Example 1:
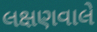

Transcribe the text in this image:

લક્ષણવાલે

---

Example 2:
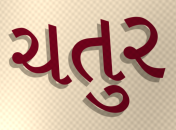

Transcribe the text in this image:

ચતુર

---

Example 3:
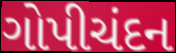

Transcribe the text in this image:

ગોપીચંદન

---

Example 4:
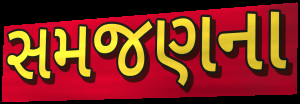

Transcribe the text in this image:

સમજણના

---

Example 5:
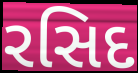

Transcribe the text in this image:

રસિદ